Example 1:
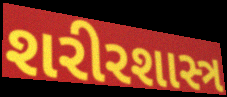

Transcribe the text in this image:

શરીરશાસ્ત્ર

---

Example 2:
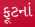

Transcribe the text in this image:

ફૂટનાં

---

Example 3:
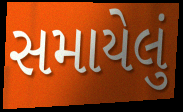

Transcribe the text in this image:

સમાયેલું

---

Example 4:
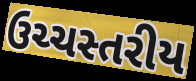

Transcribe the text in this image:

ઉચ્ચસ્તરીય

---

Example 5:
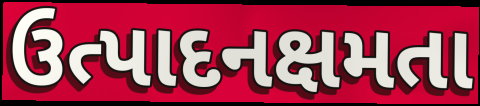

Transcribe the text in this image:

ઉત્પાદનક્ષમતા